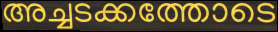
അച്ചടക്കത്തോടെ